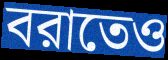
বরাতেও